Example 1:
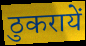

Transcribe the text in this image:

ठुकरायें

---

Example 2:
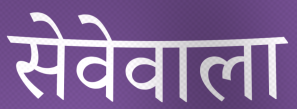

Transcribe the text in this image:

सेवेवाला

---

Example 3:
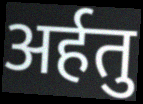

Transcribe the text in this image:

अर्हतु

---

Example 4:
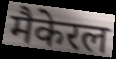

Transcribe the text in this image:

मैकेरल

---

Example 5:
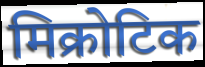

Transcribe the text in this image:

मिक्रोटिक